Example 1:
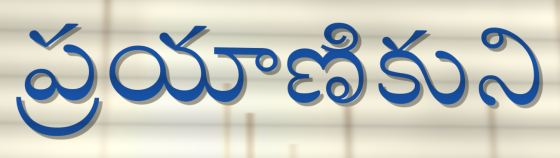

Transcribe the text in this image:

ప్రయాణికుని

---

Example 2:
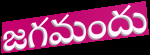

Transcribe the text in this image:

జగమందు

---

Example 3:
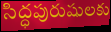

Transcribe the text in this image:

సిద్ధపురుషులకు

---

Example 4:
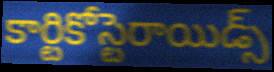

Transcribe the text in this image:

కార్టికోస్టెరాయిడ్స్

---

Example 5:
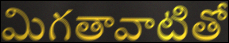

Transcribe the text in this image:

మిగతావాటితో